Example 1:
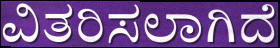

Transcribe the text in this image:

ವಿತರಿಸಲಾಗಿದೆ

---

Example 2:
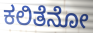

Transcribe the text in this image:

ಕಲಿತೆನೋ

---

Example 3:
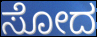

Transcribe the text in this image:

ಸೋದ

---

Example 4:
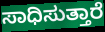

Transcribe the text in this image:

ಸಾಧಿಸುತ್ತಾರೆ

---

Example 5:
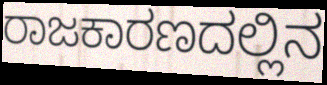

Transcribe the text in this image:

ರಾಜಕಾರಣದಲ್ಲಿನ